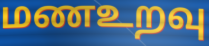
மணஉறவு